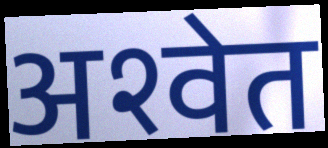
अश्वेत